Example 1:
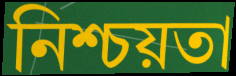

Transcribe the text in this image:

নিশ্চয়তা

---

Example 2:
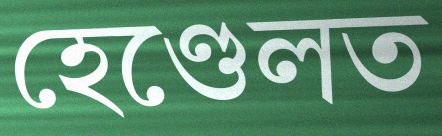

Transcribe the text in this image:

হেণ্ডেলত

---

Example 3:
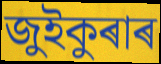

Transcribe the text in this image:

জুইকুৰাৰ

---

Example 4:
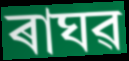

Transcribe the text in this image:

ৰাঘৱ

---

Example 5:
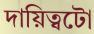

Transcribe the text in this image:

দায়িত্বটো